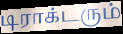
டிராக்டரும்